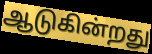
ஆடுகின்றது